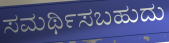
ಸಮರ್ಥಿಸಬಹುದು